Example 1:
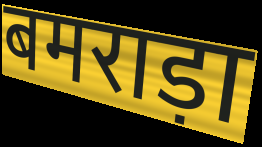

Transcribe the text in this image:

बमराड़ा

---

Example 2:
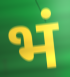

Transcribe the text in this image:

भं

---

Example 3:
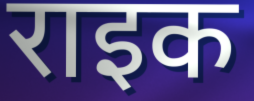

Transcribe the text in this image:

राइक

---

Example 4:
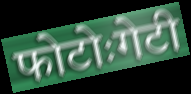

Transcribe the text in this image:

फोटोःगेटी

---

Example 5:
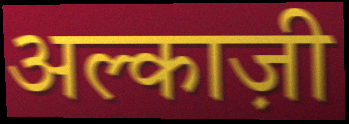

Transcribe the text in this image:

अल्काज़ी